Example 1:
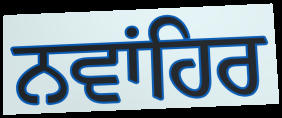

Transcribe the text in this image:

ਨਵਾਂਹਿਰ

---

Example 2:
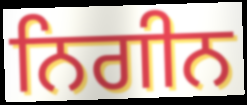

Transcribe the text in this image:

ਨਿਗੀਨ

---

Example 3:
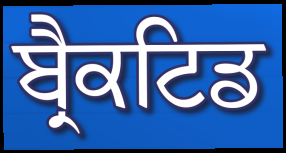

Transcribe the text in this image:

ਬ੍ਰੈਕਟਿਡ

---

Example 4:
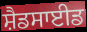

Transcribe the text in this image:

ਸ਼ੈਡਸਾਈਡ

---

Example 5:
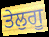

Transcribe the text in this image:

ਤੇਲੁਗੂ